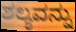
ಶಲ್ಯವನ್ನು